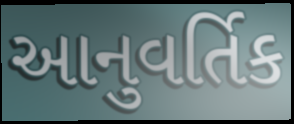
આનુવર્તિક